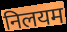
निलयम